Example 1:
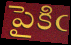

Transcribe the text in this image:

పైకిఁ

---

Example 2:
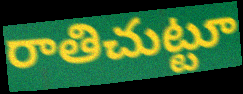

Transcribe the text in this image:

రాతిచుట్టూ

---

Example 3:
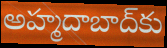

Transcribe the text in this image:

అహ్మదాబాద్‌కు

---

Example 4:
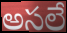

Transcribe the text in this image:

అసలే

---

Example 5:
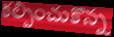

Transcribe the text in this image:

కల్పించుకొన్న